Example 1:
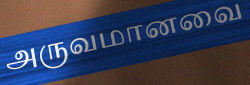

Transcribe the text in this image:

அருவமானவை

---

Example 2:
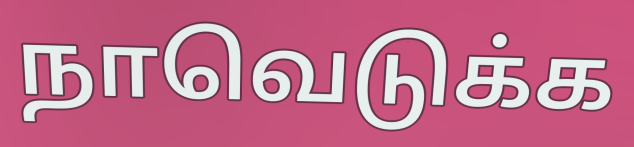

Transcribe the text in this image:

நாவெடுக்க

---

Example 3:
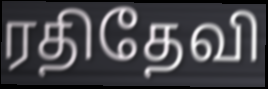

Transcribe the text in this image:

ரதிதேவி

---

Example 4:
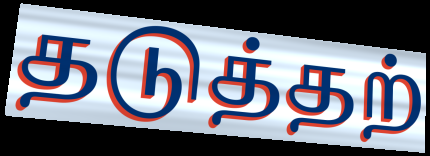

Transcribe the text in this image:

தடுத்தற்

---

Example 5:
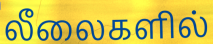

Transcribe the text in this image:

லீலைகளில்